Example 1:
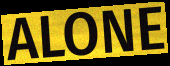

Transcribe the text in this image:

ALONE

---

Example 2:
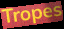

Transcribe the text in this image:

Tropes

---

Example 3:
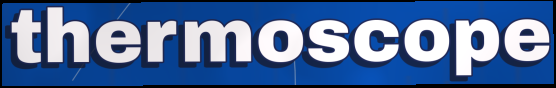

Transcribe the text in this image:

thermoscope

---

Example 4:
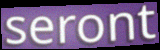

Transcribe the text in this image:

seront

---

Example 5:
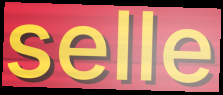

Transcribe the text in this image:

selle